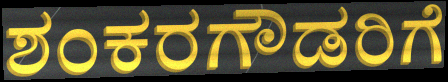
ಶಂಕರಗೌಡರಿಗೆ